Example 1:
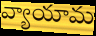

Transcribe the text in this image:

వ్యాయామ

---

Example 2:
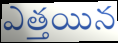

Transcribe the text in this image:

ఎత్తయిన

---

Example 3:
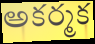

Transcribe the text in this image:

అకర్మక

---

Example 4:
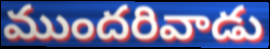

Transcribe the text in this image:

ముందరివాడు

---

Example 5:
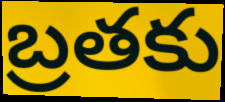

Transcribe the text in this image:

బ్రతకు